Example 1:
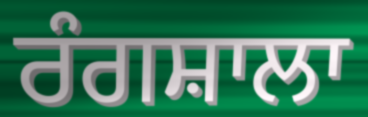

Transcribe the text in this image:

ਰੰਗਸ਼ਾਲਾ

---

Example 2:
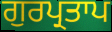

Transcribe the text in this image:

ਗੁਰਪ੍ਰਤਾਪ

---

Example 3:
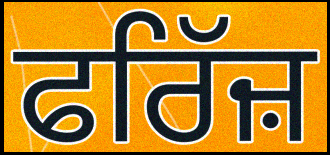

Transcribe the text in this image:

ਫਰਿੱਜ਼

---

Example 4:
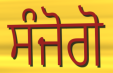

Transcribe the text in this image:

ਸੰਜੋਗੋ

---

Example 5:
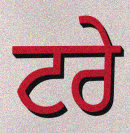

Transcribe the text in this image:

ਟਰੇ